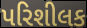
પરિશીલક